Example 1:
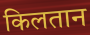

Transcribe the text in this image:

किलतान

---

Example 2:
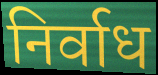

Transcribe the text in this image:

निर्वाध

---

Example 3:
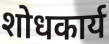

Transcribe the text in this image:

शोधकार्य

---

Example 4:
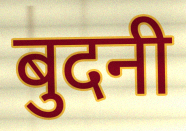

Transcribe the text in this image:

बुदनी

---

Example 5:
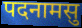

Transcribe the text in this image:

पदनामसु